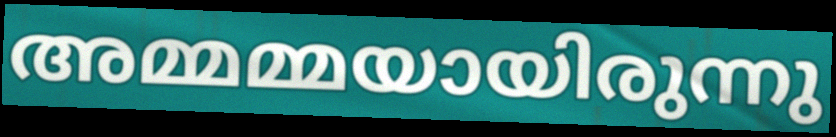
അമ്മമ്മയായിരുന്നു